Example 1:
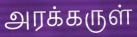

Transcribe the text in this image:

அரக்கருள்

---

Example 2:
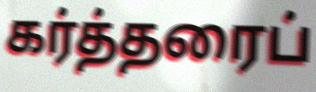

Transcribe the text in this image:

கர்த்தரைப்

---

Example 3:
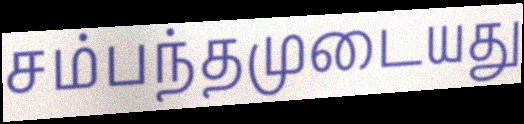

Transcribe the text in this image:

சம்பந்தமுடையது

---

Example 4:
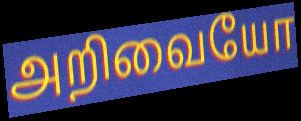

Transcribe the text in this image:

அறிவையோ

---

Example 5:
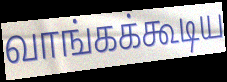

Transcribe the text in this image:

வாங்கக்கூடிய